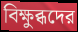
বিক্ষুব্ধদের